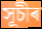
সূচীৰ